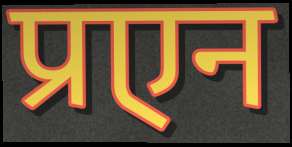
प्रएन